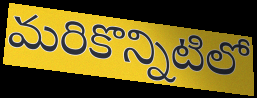
మరికొన్నిటిలో